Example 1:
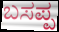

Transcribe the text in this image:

ಬಸಪ್ಪ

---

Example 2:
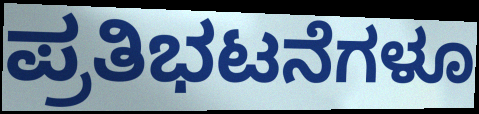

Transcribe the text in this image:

ಪ್ರತಿಭಟನೆಗಳೂ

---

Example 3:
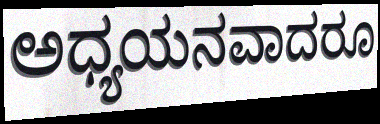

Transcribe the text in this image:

ಅಧ್ಯಯನವಾದರೂ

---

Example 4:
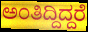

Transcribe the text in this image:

ಅಂತಿದ್ದಿದ್ದರೆ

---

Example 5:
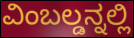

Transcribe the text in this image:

ವಿಂಬಲ್ಡನ್ನಲ್ಲಿ